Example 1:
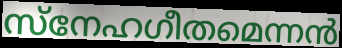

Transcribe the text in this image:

സ്നേഹഗീതമെന്നൻ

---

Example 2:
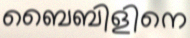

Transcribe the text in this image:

ബൈബിളിനെ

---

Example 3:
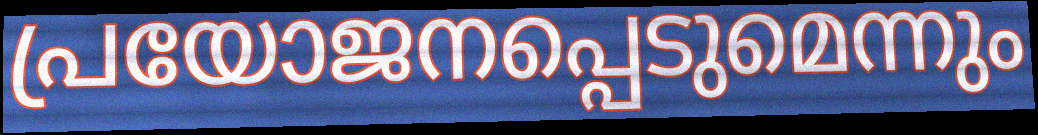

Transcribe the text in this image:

പ്രയോജനപ്പെടുമെന്നും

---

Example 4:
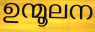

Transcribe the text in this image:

ഉന്മൂലന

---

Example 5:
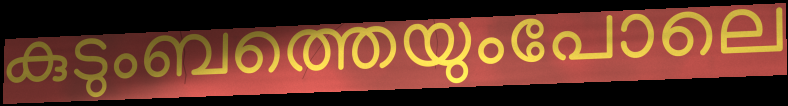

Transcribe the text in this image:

കുടുംബത്തെയുംപോലെ